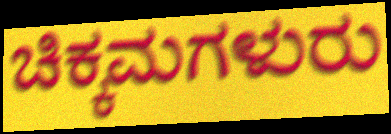
ಚಿಕ್ಕಮಗಳುರು